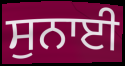
ਸੁਨਾਈ